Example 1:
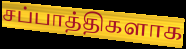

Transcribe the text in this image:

சப்பாத்திகளாக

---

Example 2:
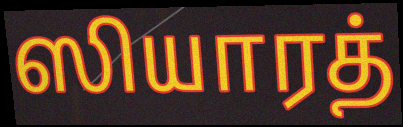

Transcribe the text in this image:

ஸியாரத்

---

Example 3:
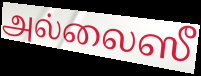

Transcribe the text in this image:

அல்லைஸீ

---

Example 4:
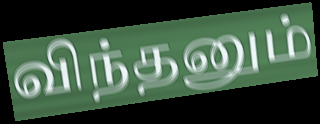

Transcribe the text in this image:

விந்தனும்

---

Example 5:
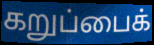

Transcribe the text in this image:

கறுப்பைக்